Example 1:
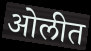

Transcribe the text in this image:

ओलीत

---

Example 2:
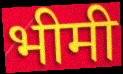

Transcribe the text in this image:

भीमी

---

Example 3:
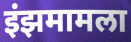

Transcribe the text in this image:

इंझमामला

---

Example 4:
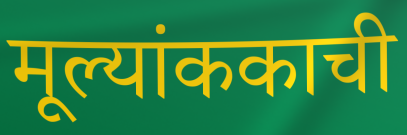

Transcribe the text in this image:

मूल्यांककाची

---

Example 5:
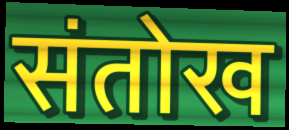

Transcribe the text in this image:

संतोख